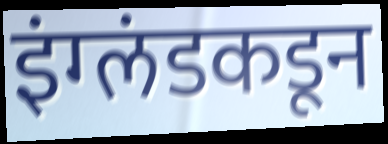
इंग्लंडकडून